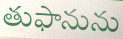
తుఫానును